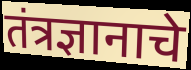
तंत्रज्ञानाचे